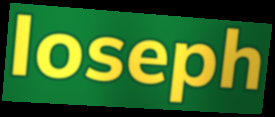
Ioseph